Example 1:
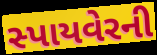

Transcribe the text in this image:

સ્પાયવેરની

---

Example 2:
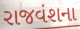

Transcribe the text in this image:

રાજવંશના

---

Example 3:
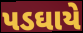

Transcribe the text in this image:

પડઘાયે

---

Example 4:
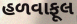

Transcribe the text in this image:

હળવાફૂલ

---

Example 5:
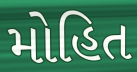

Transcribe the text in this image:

મોહિત